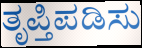
ತೃಪ್ತಿಪಡಿಸು